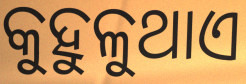
କୁହୁଳୁଥାଏ